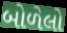
બોળેલો